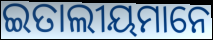
ଇତାଲୀୟମାନେ